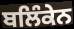
ਬਲਿੰਕੇਨ